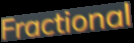
Fractional